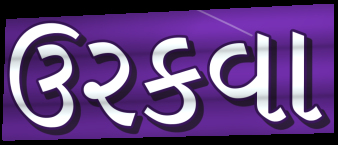
ઉરકવા